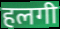
हलगी